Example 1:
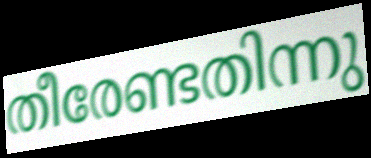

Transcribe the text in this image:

തീരേണ്ടതിന്നു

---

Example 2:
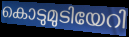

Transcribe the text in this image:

കൊടുമുടിയേറി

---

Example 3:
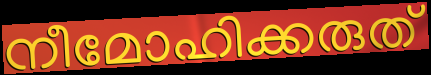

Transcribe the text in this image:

നീമോഹിക്കരുത്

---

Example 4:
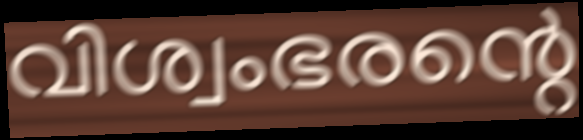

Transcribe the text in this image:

വിശ്വംഭരന്റെ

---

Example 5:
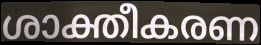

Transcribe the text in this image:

ശാക്തീകരണ